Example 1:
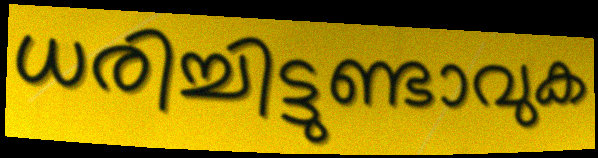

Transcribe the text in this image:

ധരിച്ചിട്ടുണ്ടാവുക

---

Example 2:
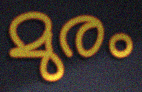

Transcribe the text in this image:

മുരം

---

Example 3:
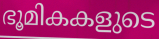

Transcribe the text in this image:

ഭൂമികകളുടെ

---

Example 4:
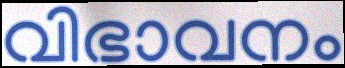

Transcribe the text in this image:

വിഭാവനം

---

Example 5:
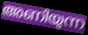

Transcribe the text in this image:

അണിയുന്ന